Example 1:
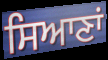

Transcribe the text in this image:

ਸਿਆਣਾਂ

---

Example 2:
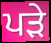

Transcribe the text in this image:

ਪੜੇ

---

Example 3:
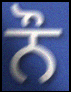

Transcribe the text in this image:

ਨੌ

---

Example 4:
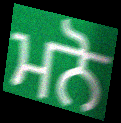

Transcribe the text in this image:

ਮਨੋ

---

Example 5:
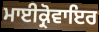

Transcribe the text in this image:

ਮਾਈਕ੍ਰੋਵਾਇਰ